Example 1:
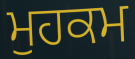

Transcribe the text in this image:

ਮੁਹਕਮ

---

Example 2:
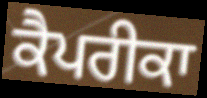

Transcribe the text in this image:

ਕੈਪਰੀਕਾ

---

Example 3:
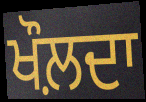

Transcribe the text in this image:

ਖੌਲ਼ਦਾ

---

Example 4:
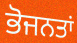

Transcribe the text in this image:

ਭੋਜਨਤਾਂ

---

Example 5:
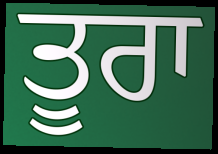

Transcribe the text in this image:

ਤੂਰਾ